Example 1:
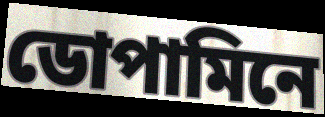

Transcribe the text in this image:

ডোপামিনে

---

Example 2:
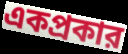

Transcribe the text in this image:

একপ্রকার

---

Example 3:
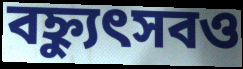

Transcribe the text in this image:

বহ্ন্যুৎসবও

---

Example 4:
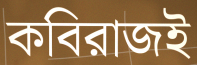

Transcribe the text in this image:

কবিরাজই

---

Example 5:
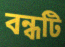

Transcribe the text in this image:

বন্ধটি